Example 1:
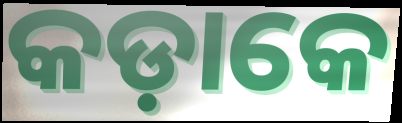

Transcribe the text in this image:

କଡ଼ାକେ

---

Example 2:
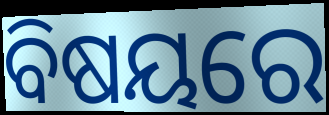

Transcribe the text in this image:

ବିଷୟରେ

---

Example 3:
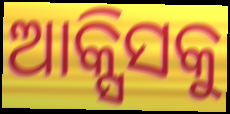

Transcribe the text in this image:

ଆକ୍ସିସକୁ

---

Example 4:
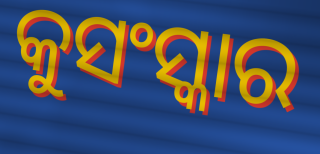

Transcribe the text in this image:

କୁସଂସ୍କାର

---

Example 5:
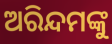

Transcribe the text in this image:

ଅରିନ୍ଦମଙ୍କୁ